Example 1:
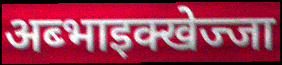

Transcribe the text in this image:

अब्भाइक्खेज्जा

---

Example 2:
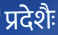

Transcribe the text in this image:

प्रदेशैः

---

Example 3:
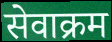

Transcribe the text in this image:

सेवाक्रम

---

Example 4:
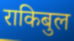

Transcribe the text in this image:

राकिबुल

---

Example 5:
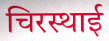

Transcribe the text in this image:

चिरस्थाई